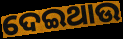
ଦେଇଥାଉ